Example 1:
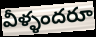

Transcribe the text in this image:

వీళ్ళందరూ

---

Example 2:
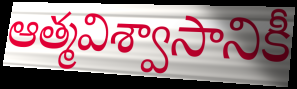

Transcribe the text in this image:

ఆత్మవిశ్వాసానికీ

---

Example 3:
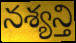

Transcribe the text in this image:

నశ్యన్తి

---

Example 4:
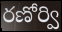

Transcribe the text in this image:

రణోర్వి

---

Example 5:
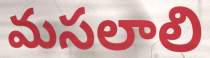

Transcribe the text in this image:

మసలాలి